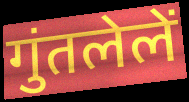
गुंतलेलें